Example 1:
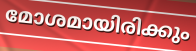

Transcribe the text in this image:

മോശമായിരിക്കും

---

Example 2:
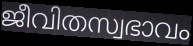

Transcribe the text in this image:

ജീവിതസ്വഭാവം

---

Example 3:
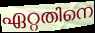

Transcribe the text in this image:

ഏറ്റതിനെ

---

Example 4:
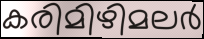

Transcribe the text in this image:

കരിമിഴിമലർ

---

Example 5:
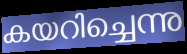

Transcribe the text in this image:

കയറിച്ചെന്നു